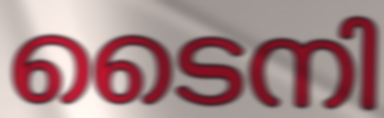
ടൈനി